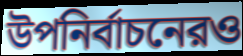
উপনির্বাচনেরও